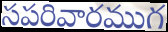
సపరివారముగ